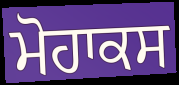
ਮੋਹਾਕਸ